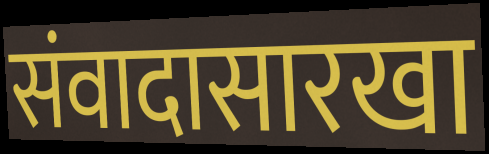
संवादासारखा